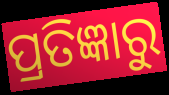
ପ୍ରତିଜ୍ଞାରୁ